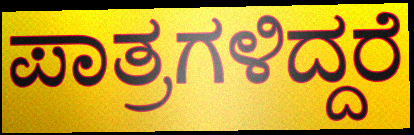
ಪಾತ್ರಗಳಿದ್ದರೆ